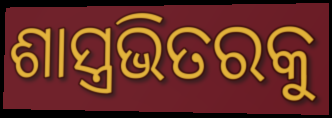
ଶାସ୍ତ୍ରଭିତରକୁ